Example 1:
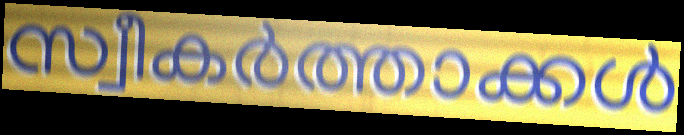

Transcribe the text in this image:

സ്വീകർത്താക്കൾ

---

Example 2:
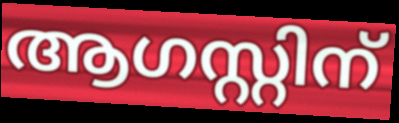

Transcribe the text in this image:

ആഗസ്റ്റിന്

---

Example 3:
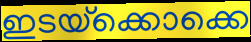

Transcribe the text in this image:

ഇടയ്‌ക്കൊക്കെ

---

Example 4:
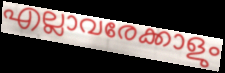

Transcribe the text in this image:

എല്ലാവരേക്കാളും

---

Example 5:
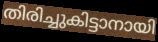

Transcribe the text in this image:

തിരിച്ചുകിട്ടാനായി